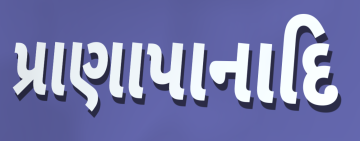
પ્રાણાપાનાદિ